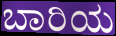
ಬಾರಿಯ